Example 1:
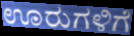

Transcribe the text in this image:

ಊರುಗಳಿಗೆ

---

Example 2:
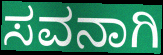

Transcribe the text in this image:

ಸವನಾಗಿ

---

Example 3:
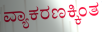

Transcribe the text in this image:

ವ್ಯಾಕರಣಕ್ಕಿಂತ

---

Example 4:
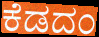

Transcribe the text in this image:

ಕೆಡದಂ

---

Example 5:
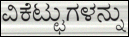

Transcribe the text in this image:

ವಿಕೆಟ್ಟುಗಳನ್ನು